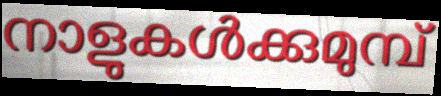
നാളുകൾക്കുമുമ്പ്